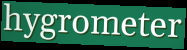
hygrometer